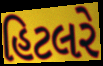
હિટલરે